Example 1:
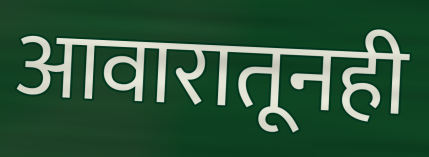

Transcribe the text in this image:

आवारातूनही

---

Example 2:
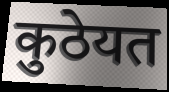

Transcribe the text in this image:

कुठेयत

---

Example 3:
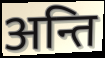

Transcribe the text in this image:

अन्ति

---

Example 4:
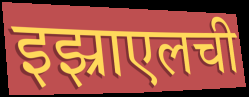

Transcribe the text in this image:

इझ्राएलची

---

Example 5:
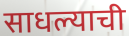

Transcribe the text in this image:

साधल्याची